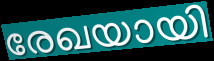
രേഖയായി